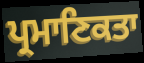
ਪ੍ਰਮਾਣਿਕਤਾ